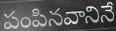
పంపినవానినే